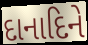
દાનાદિને